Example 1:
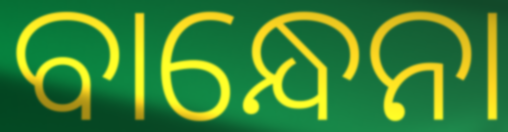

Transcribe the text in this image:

ବାନ୍ଧେନା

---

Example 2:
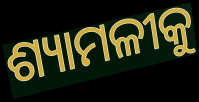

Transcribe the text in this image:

ଶ୍ୟାମଳୀକୁ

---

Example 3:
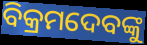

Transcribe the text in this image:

ବିକ୍ରମଦେବଙ୍କୁ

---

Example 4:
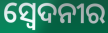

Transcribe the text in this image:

ସ୍ୱେଦନୀର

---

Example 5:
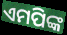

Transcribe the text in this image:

ଏମପିଙ୍କ